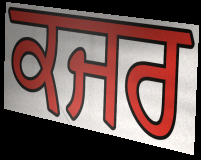
ਕਜਰ